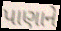
પાણાને